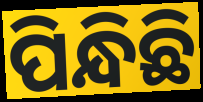
ପିନ୍ଧିଛି